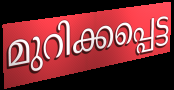
മുറിക്കപ്പെട്ട